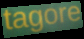
tagore